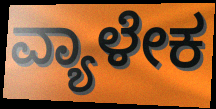
ವ್ಯಾಳೇಕ